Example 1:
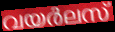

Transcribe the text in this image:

വയർലസ്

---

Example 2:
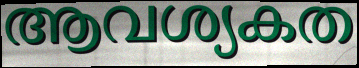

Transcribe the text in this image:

ആവശ്യകത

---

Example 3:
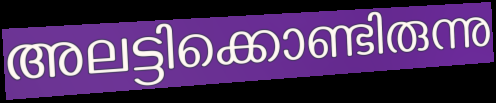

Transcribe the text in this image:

അലട്ടിക്കൊണ്ടിരുന്നു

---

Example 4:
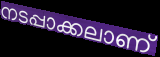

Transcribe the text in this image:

നടപ്പാക്കലാണ്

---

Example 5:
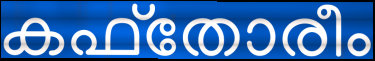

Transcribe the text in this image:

കഫ്തോരീം